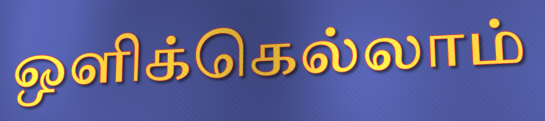
ஒளிக்கெல்லாம்